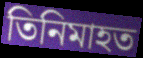
তিনিমাহত